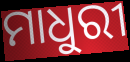
ମାଧୁରୀ